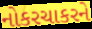
નોકરચાકરને